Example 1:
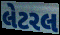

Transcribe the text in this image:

લેટરલ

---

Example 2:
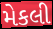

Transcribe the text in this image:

મેકલી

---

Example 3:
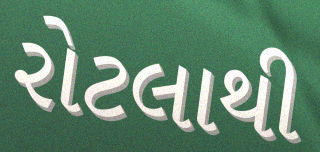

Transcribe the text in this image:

રોટલાથી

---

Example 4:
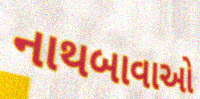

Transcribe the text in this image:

નાથબાવાઓ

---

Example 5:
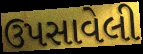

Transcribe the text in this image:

ઉપસાવેલી